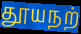
தூயநற்